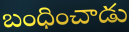
బంధించాడు